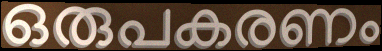
ഒരുപകരണം